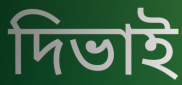
দিভাই